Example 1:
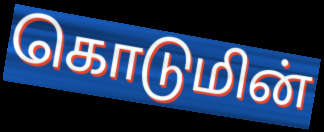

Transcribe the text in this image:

கொடுமின்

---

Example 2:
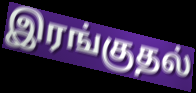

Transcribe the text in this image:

இரங்குதல்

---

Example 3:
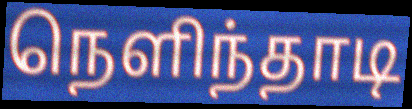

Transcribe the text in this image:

நெளிந்தாடி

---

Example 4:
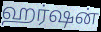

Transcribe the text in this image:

ஹர்ஷன்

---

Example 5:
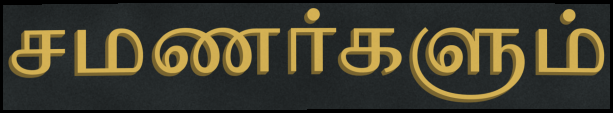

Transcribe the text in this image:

சமணர்களும்